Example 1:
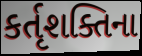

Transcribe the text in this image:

કર્તૃશક્તિના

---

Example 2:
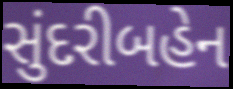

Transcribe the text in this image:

સુંદરીબહેન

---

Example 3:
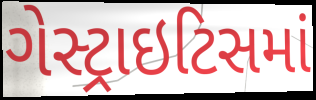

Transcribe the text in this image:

ગેસ્ટ્રાઇટિસમાં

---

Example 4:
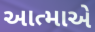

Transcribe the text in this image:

આત્માએ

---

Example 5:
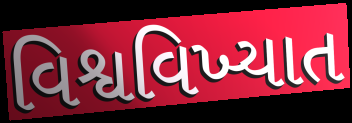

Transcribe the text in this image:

વિશ્વવિખ્યાત